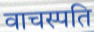
वाचस्पति